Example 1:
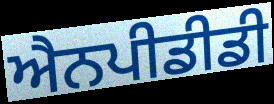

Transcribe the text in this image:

ਐਨਪੀਡੀਡੀ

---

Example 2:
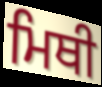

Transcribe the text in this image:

ਮਿਥੀ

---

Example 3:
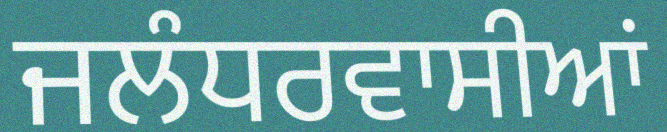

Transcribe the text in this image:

ਜਲੰਧਰਵਾਸੀਆਂ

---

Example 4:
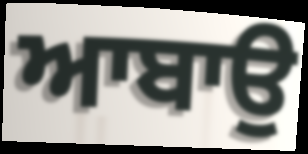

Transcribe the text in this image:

ਆਬਾਉ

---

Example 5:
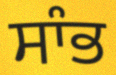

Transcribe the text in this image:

ਸਾੰਭ